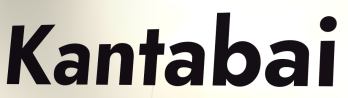
Kantabai